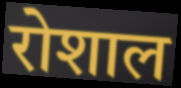
रोशाल